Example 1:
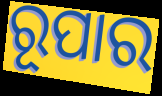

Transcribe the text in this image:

ରୂପାର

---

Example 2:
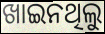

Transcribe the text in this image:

ଖାଇନଥିଲୁ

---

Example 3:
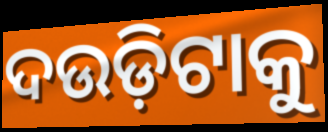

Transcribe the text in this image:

ଦଉଡ଼ିଟାକୁ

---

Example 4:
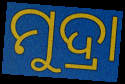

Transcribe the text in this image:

ମୁଦ୍ରା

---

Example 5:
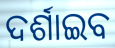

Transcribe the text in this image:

ଦର୍ଶାଇବ